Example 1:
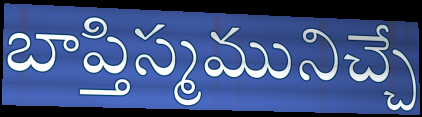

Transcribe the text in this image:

బాప్తిస్మమునిచ్చే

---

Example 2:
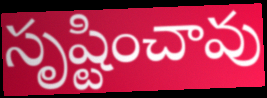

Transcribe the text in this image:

సృష్టించావు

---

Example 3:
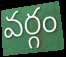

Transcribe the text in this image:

వర్గం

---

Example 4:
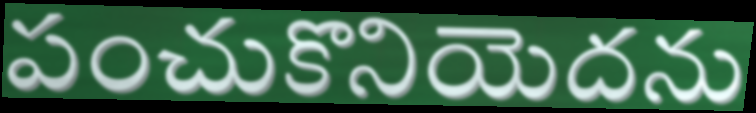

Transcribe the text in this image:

పంచుకొనియెదను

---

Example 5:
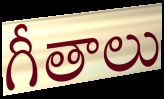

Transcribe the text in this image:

గీతాలు